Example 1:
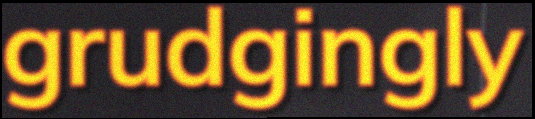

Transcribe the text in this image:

grudgingly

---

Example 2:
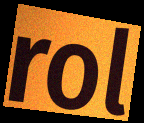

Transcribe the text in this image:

rol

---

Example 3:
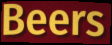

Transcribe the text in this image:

Beers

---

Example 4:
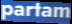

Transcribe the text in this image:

partam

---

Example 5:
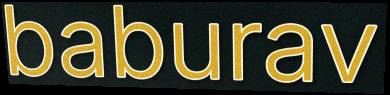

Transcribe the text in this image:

baburav